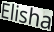
Elisha